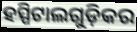
ହସ୍ପିଟାଲଗୁଡ଼ିକର